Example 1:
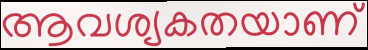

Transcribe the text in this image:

ആവശ്യകതയാണ്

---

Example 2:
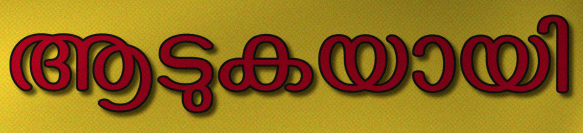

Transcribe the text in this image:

ആടുകയായി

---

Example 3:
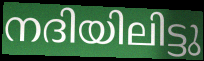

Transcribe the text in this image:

നദിയിലിട്ടു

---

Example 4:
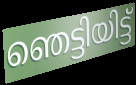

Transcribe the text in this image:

ഞെട്ടിയിട്ട്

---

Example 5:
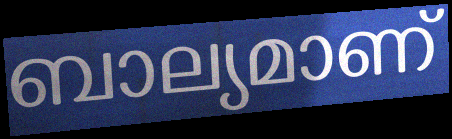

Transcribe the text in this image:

ബാല്യമാണ്